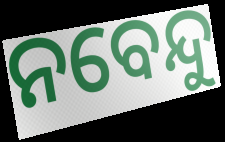
ନବେନ୍ଦୁ